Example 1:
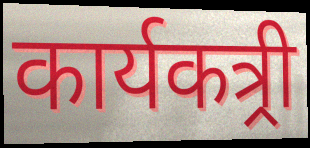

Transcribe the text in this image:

कार्यकत्र्री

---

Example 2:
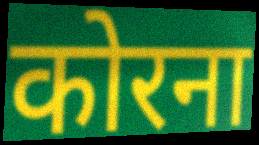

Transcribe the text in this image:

कोरना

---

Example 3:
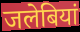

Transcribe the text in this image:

जलेबियां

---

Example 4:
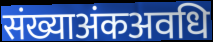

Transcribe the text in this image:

संख्याअंकअवधि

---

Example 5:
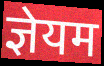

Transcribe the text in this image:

ज्ञेयम